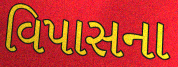
વિપાસના